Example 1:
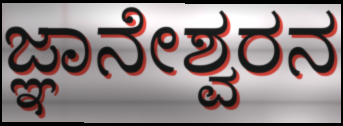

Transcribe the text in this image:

ಜ್ಞಾನೇಶ್ವರನ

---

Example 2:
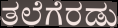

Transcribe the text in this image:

ತಲೆಗೆರಡು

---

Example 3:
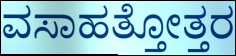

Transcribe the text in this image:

ವಸಾಹತ್ತೋತ್ತರ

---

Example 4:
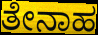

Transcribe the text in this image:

ತೇನಾಹ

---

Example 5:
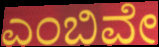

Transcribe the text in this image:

ಎಂಬಿವೇ